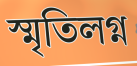
স্মৃতিলগ্ন